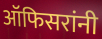
ऑफिसरांनी